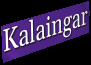
Kalaingar